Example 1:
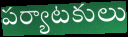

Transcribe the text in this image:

పర్యాటకులు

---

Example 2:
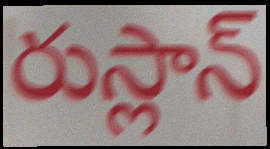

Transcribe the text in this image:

రుస్లాన్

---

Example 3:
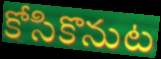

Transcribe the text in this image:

కోసికొనుట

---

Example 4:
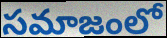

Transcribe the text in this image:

సమాజంలో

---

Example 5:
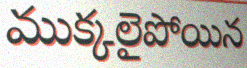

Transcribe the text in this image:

ముక్కలైపోయిన